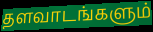
தளவாடங்களும்